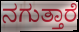
ನಗುತ್ತಾರೆ